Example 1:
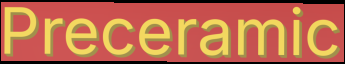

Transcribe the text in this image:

Preceramic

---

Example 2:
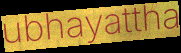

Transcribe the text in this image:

ubhayattha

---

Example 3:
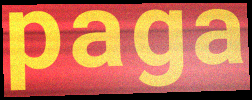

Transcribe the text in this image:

paga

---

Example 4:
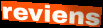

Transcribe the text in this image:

reviens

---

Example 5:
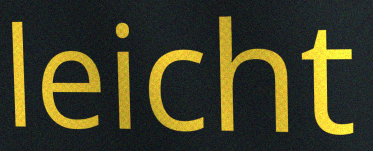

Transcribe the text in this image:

leicht